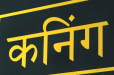
कनिंग